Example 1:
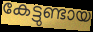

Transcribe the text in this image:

കേട്ടുണ്ടായ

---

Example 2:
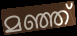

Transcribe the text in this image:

മഞ്ഞ്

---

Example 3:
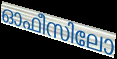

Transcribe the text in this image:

ഓഫീസിലോ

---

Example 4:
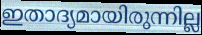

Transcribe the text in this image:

ഇതാദ്യമായിരുന്നില്ല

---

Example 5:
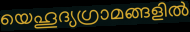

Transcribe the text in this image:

യെഹൂദ്യഗ്രാമങ്ങളിൽ